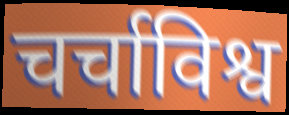
चर्चाविश्व